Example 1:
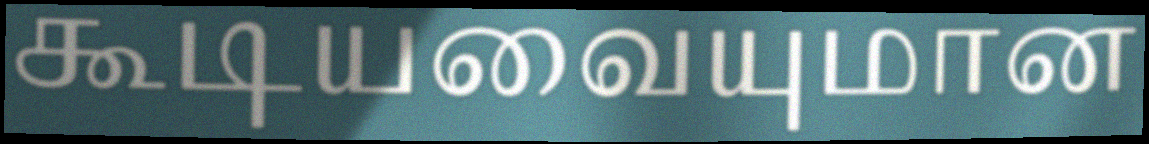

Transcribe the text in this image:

கூடியவையுமான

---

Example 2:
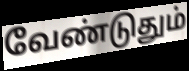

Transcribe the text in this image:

வேண்டுதும்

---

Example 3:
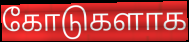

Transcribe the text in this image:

கோடுகளாக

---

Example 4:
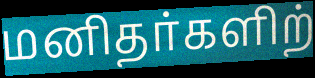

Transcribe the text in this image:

மனிதர்களிற்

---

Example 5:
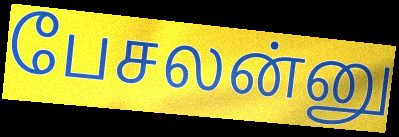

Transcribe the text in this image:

பேசலன்னு